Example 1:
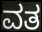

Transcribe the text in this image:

ವತ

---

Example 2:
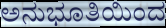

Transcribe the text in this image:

ಅನುಭೂತಿಯಿಂದ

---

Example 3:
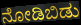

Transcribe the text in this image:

ನೋಡಿಬಿಡು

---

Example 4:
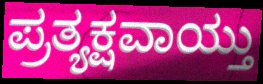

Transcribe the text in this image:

ಪ್ರತ್ಯಕ್ಷವಾಯ್ತು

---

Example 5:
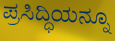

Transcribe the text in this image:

ಪ್ರಸಿದ್ಧಿಯನ್ನೂ